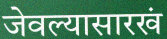
जेवल्यासारखं